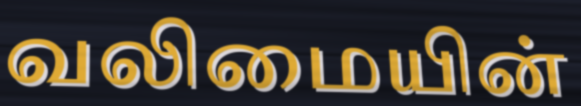
வலிமையின்